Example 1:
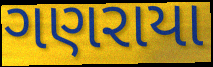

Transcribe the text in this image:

ગણરાયા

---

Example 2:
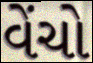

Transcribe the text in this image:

વેંચો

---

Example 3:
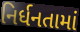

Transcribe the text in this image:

નિર્ધનતામાં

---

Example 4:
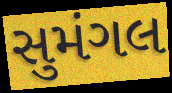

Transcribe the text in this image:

સુમંગલ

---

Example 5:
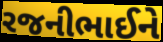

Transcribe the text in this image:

રજનીભાઈને